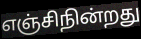
எஞ்சிநின்றது